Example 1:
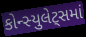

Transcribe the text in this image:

કોન્સ્યુલેટ્સમાં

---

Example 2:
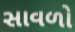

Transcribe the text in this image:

સાવળો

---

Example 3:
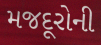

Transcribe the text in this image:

મજદૂરોની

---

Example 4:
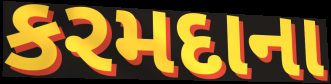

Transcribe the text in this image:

કરમદાના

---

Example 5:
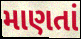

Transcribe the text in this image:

માણતાં